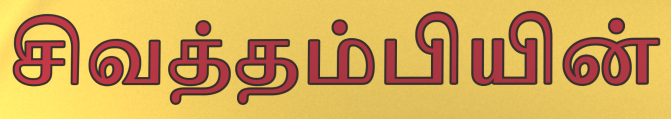
சிவத்தம்பியின்